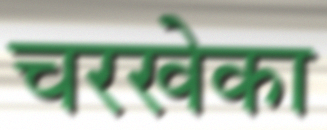
चरखेका